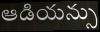
ఆడియన్సు